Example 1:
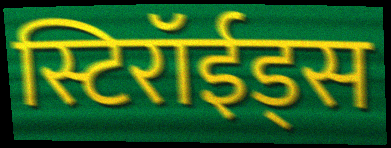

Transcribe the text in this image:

स्टिरॉईड्स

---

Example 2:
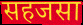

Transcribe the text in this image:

सहजसा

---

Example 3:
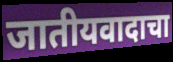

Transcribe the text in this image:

जातीयवादाचा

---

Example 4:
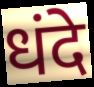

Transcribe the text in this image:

धंदे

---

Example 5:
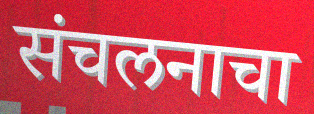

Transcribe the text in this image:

संचलनाचा